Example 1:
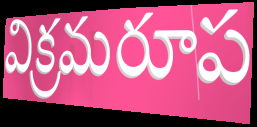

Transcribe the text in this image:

విక్రమరూప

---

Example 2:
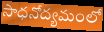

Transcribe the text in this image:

సాధనోద్యమంలో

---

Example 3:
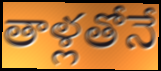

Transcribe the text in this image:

తాళ్లతోనే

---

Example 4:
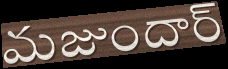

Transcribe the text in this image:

మజుందార్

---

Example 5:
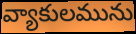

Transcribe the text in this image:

వ్యాకులమును